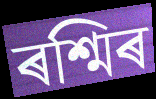
ৰশ্মিৰ